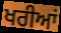
ਖਰੀਆਂ